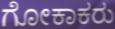
ಗೋಕಾಕರು